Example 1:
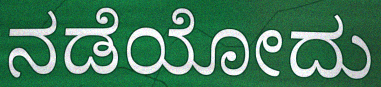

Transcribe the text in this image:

ನಡೆಯೋದು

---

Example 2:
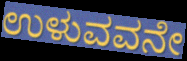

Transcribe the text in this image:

ಉಳುವವನೇ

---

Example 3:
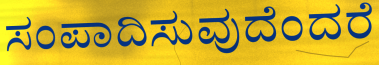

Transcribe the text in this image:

ಸಂಪಾದಿಸುವುದೆಂದರೆ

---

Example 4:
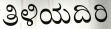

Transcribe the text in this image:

ತಿಳಿಯದಿರಿ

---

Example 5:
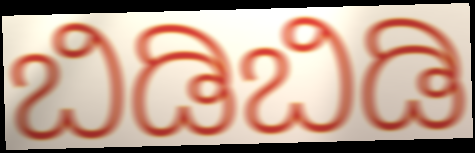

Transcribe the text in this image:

ಬಿಡಿಬಿಡಿ